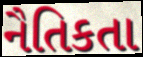
નૈતિકતા